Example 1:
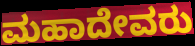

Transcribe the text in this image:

ಮಹಾದೇವರು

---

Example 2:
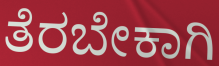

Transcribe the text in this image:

ತೆರಬೇಕಾಗಿ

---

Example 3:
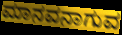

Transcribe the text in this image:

ಮಾನವನಾಗುವ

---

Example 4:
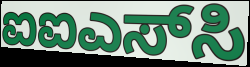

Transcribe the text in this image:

ಐಐಎಸ್‌ಸಿ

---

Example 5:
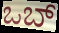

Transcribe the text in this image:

ಒಬ್